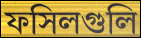
ফসিলগুলি